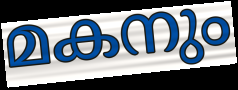
മകനും